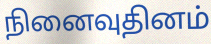
நினைவுதினம்